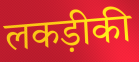
लकड़ीकी